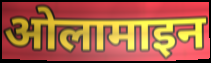
ओलामाइन